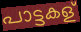
പാട്ടകള്